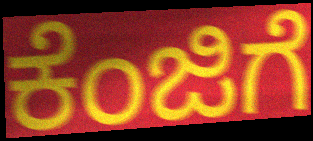
ಕೆಂಜಿಗೆ